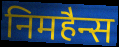
निमहैन्स